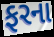
ફરના